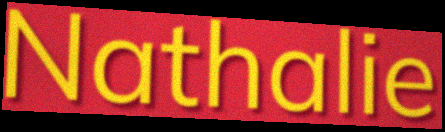
Nathalie